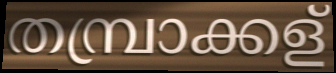
തമ്പ്രാക്കള്